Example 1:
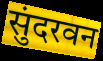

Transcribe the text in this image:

सुंदरवन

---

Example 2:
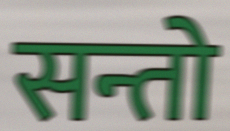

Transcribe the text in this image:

सन्तो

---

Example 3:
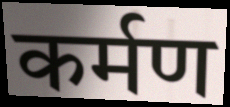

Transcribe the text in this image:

कर्मण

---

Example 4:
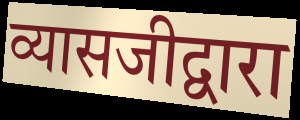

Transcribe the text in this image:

व्यासजीद्वारा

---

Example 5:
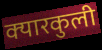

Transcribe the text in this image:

क्यारकुली